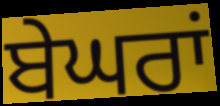
ਬੇਘਰਾਂ